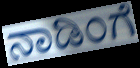
ನಾಡಿಂಗೆ